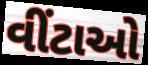
વીંટાઓ